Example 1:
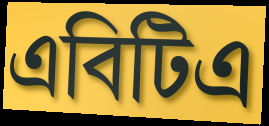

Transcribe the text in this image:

এবিটিএ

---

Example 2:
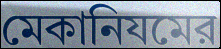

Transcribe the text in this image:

মেকানিযমের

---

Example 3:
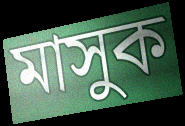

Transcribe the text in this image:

মাসুক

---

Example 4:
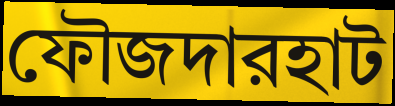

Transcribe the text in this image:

ফৌজদারহাট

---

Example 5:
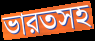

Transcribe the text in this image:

ভারতসহ